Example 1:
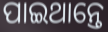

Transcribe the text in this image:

ପାଇଥାନ୍ତେ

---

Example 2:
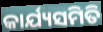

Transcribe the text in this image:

କାର୍ଯ୍ୟସମିତି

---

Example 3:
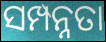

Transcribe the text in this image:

ସମ୍ପନ୍ନତା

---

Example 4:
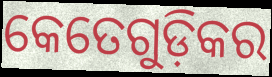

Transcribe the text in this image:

କେତେଗୁଡ଼ିକର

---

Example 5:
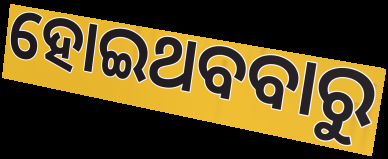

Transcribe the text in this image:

ହୋଇଥବବାରୁ